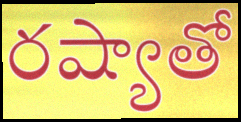
రష్యాతో